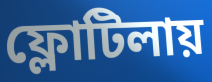
ফ্লোটিলায়